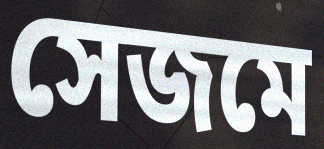
সেজমে